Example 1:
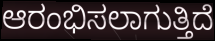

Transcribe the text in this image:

ಆರಂಭಿಸಲಾಗುತ್ತಿದೆ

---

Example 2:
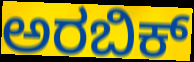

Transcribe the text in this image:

ಅರಬಿಕ್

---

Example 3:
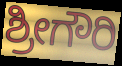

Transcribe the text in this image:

ಶ್ರೀಗೌರಿ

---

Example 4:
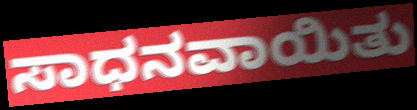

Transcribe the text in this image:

ಸಾಧನವಾಯಿತು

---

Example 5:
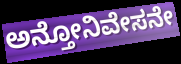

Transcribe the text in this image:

ಅನ್ತೋನಿವೇಸನೇ